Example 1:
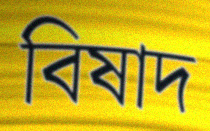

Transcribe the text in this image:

বিষাদ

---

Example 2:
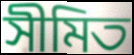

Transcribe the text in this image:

সীমিত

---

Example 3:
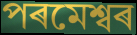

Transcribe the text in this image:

পৰমেশ্বৰ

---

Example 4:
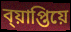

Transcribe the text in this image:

ব্য়াপ্তিয়ে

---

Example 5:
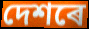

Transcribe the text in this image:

দেশৰে